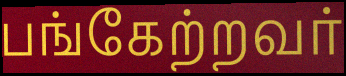
பங்கேற்றவர்